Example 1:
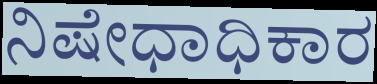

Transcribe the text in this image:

ನಿಷೇಧಾಧಿಕಾರ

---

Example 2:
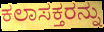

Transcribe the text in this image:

ಕಲಾಸಕ್ತರನ್ನು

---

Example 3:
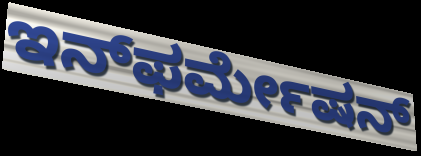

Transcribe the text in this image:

ಇನ್‌ಫರ್ಮೇಷನ್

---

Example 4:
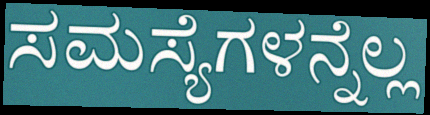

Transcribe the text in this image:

ಸಮಸ್ಯೆಗಳನ್ನೆಲ್ಲ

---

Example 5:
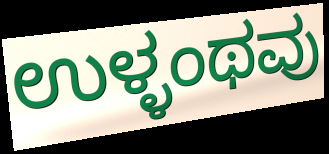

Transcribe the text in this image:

ಉಳ್ಳಂಥವು